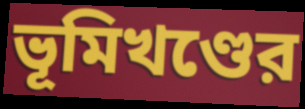
ভূমিখণ্ডের